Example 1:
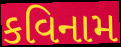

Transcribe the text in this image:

કવિનામ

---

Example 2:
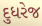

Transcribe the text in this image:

દુધરેજ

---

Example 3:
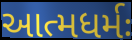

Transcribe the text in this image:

આત્મધર્મઃ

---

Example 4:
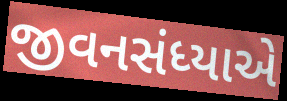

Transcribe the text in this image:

જીવનસંધ્યાએ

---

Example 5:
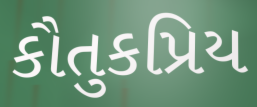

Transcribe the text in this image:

કૌતુકપ્રિય